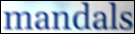
mandals